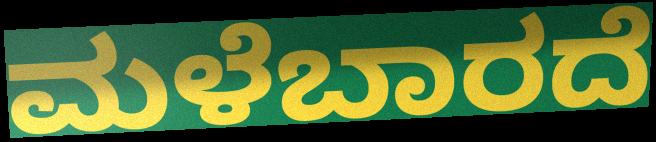
ಮಳೆಬಾರದೆ